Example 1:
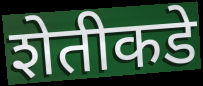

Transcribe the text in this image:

शेतीकडे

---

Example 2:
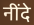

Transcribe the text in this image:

नींदे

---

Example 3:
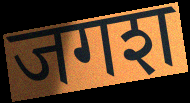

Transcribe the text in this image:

जगश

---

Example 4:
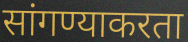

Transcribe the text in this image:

सांगण्याकरता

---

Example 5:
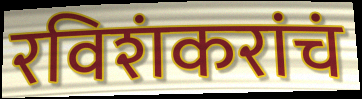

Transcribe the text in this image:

रविशंकरांचं